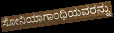
ಸೋನಿಯಾಗಾಂಧಿಯವರನ್ನು